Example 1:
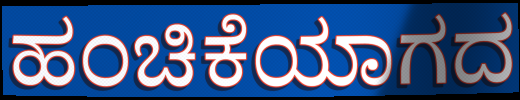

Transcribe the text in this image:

ಹಂಚಿಕೆಯಾಗದ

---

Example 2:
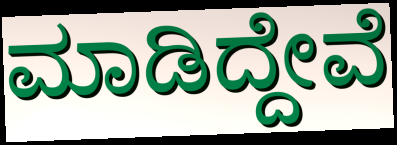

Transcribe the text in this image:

ಮಾಡಿದ್ದೇವೆ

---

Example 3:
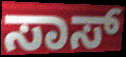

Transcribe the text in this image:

ಸಾಸ್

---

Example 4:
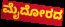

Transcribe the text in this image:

ಮೈದೋರದ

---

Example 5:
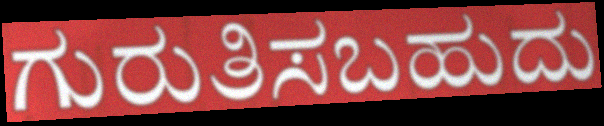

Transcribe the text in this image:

ಗುರುತಿಸಬಹುದು